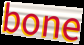
bone